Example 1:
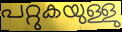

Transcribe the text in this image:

പറ്റുകയുള്ളു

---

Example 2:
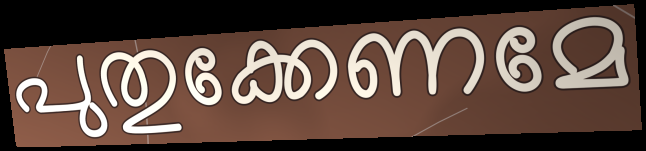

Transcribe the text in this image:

പുതുക്കേണമേ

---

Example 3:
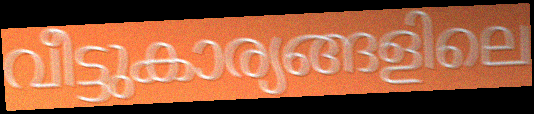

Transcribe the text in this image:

വീട്ടുകാര്യങ്ങളിലെ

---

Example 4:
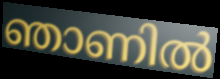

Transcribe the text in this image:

ഞാണിൽ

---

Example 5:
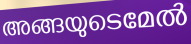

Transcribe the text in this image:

അങ്ങയുടെമേൽ